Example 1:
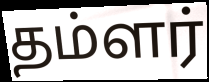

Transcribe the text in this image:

தம்ளர்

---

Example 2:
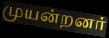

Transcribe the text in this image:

முயன்றனர்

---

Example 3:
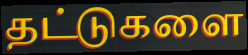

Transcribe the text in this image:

தட்டுகளை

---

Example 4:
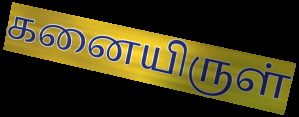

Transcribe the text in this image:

கனையிருள்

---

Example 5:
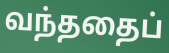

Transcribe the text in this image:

வந்ததைப்